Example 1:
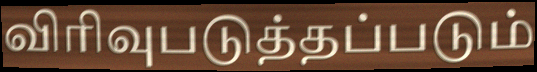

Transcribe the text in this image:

விரிவுபடுத்தப்படும்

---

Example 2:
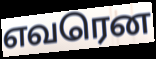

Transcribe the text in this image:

எவரென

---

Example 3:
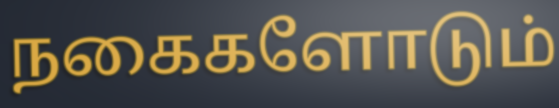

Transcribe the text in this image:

நகைகளோடும்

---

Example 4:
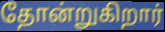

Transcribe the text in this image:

தோன்றுகிறார்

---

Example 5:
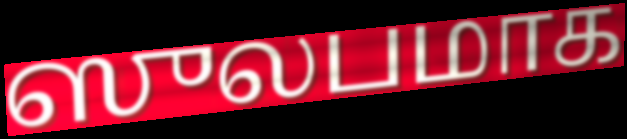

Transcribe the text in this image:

ஸுலபமாக